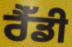
ਰੈੱਡੀ